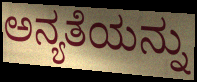
ಅನ್ಯತೆಯನ್ನು